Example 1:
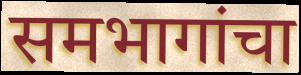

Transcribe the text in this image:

समभागांचा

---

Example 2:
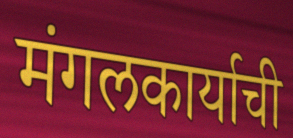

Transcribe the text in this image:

मंगलकार्याची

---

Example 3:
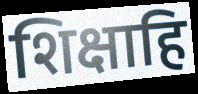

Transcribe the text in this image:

शिक्षाहि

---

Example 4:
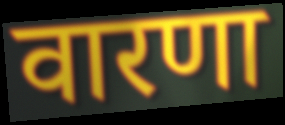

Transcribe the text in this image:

वारणा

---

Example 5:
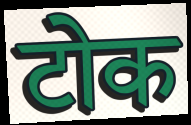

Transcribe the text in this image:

टोक